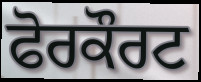
ਫੋਰਕੌਰਟ